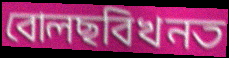
বোলছবিখনত